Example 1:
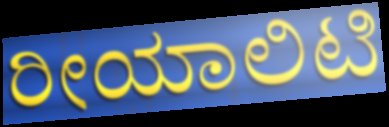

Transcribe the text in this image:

ರೀಯಾಲಿಟಿ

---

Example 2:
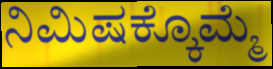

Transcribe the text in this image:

ನಿಮಿಷಕ್ಕೊಮ್ಮೆ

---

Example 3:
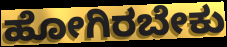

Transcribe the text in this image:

ಹೋಗಿರಬೇಕು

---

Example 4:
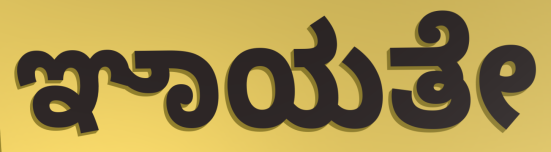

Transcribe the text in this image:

ಞಾಯತೇ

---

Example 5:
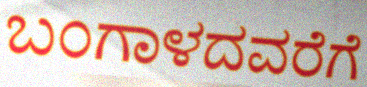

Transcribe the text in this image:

ಬಂಗಾಳದವರೆಗೆ